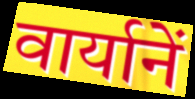
वार्यानें